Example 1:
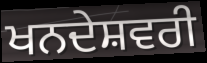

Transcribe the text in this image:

ਖਨਦੇਸ਼ਵਰੀ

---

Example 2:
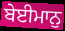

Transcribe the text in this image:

ਬੇਈਮਾਨੁ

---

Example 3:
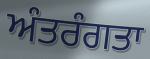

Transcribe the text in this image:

ਅੰਤਰੰਗਤਾ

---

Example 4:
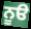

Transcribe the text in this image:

ਨੂੳ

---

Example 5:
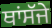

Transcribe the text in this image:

ਥਾਂਸੱਜੇ